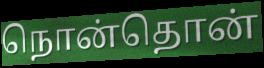
நொன்தொன்